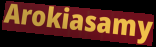
Arokiasamy